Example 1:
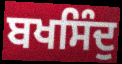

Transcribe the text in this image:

ਬਖਸਿੰਦੁ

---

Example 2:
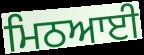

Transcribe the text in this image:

ਮਿਠਆਈ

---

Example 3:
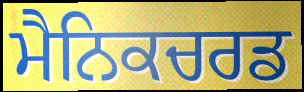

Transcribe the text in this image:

ਮੈਨਿਕਚਰਡ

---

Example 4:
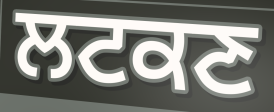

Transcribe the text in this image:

ਲਟਕਣ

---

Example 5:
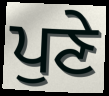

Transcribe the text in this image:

ਪੁਣੇ